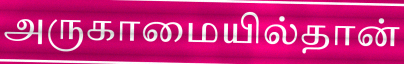
அருகாமையில்தான்